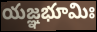
యజ్ఞభూమిః